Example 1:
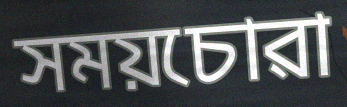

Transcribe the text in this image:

সময়চোৱা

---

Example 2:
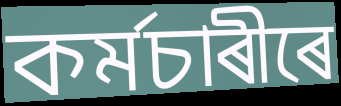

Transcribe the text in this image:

কৰ্মচাৰীৰে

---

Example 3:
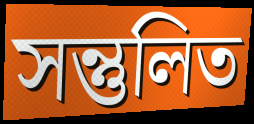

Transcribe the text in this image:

সন্তুলিত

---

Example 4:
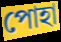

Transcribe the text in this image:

পোহা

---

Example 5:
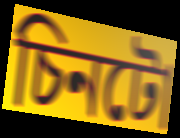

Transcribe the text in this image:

চিনটো